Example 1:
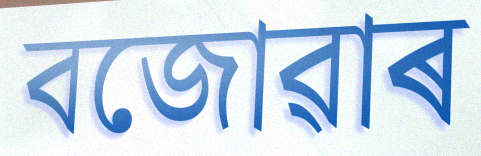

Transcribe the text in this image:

বজোৱাৰ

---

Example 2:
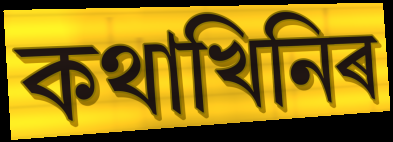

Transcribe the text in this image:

কথাখিনিৰ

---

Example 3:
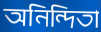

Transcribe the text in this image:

অনিন্দিতা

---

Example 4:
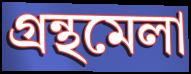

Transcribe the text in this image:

গ্ৰন্থমেলা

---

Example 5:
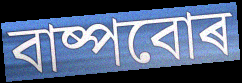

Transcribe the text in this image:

বাষ্পবোৰ